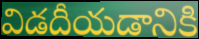
విడదీయడానికి